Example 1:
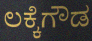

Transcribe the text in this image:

ಲಕ್ಕೆಗೌಡ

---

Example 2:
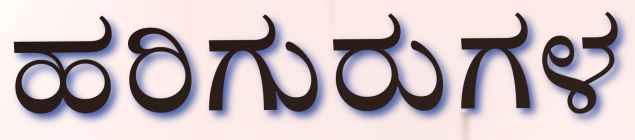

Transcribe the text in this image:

ಹರಿಗುರುಗಳ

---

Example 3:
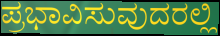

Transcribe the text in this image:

ಪ್ರಭಾವಿಸುವುದರಲ್ಲಿ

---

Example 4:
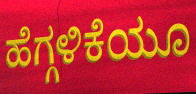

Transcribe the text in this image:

ಹೆಗ್ಗಳಿಕೆಯೂ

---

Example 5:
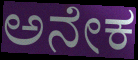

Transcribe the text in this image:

ಅನೇಕ